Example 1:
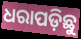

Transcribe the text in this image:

ଧରାପଡ଼ିଛୁ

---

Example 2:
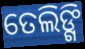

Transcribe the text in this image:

ତେଲିଙ୍ଗି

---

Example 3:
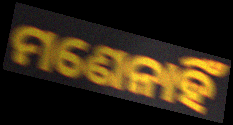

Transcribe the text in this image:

ମଣେନାହିଁ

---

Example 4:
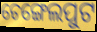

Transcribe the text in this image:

ଚେଙ୍ଗେଲପୁଟ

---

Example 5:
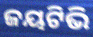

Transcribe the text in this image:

ଜୟଟିଭି